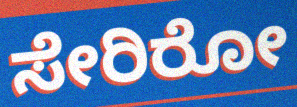
ಸೇರಿರೋ